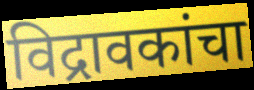
विद्रावकांचा